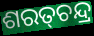
ଶରତ୍‌ଚନ୍ଦ୍ର